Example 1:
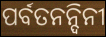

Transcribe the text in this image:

ପର୍ବତନନ୍ଦିନୀ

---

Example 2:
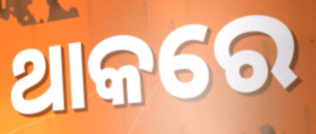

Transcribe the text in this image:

ଥାକରେ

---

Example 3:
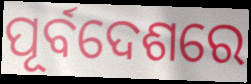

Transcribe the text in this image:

ପୂର୍ବଦେଶରେ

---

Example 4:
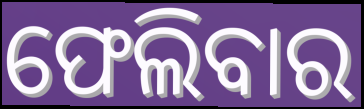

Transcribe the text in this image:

ଫେଲିବାର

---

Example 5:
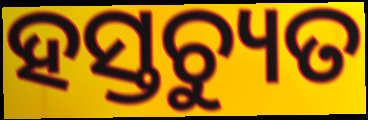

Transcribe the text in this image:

ହସ୍ତଚ୍ୟୁତ